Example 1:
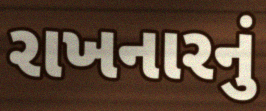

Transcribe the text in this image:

રાખનારનું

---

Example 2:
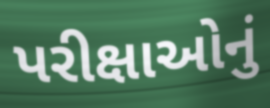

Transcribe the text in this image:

પરીક્ષાઓનું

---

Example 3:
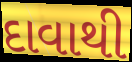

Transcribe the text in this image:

દાવાથી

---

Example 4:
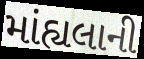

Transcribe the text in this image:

માંહ્યલાની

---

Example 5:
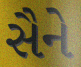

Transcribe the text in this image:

સૈને